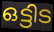
ഒട്ടിട